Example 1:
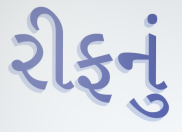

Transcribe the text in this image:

રીફનું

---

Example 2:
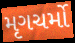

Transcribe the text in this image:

મૃગચર્મો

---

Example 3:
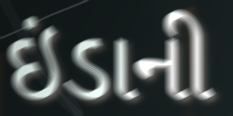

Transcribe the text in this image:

ઇંડાની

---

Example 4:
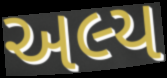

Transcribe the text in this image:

અલ્ય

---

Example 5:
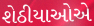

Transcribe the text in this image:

શેઠીયાઓએ